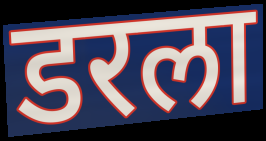
डरला